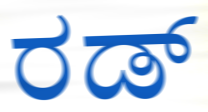
ರಡ್